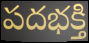
పదభక్తి